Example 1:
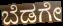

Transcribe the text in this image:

ಬೆಡಗೇ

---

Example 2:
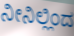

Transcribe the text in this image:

ನೀನಿಲ್ಲಿಂದ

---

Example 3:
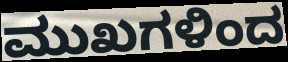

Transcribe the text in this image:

ಮುಖಗಳಿಂದ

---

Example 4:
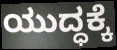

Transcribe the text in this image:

ಯುದ್ಧಕ್ಕೆ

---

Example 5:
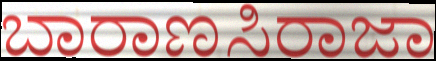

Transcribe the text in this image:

ಬಾರಾಣಸಿರಾಜಾ